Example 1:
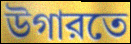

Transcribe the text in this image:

উগারতে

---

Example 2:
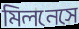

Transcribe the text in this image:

মিলনেসে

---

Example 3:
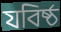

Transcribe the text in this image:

যবিষ্ঠ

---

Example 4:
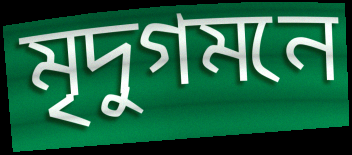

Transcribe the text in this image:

মৃদুগমনে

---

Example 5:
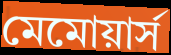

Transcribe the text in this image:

মেমোয়ার্স